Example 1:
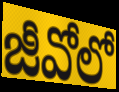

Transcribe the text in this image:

జీవోలో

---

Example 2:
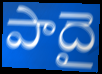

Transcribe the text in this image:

పాదై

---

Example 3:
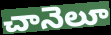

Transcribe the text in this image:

చానెలూ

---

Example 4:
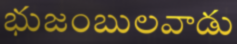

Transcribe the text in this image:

భుజంబులవాడు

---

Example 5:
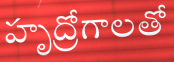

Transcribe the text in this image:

హృద్రోగాలతో